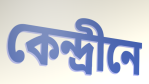
কেন্দ্রীনে